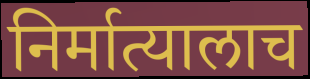
निर्मात्यालाच